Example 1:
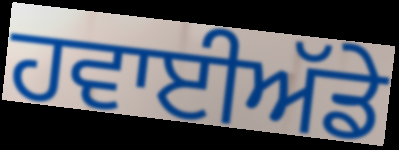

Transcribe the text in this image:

ਹਵਾਈਅੱਡੇ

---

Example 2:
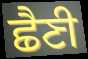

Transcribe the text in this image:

ਛੈਣੀ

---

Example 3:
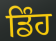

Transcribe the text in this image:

ਡਿੰਹ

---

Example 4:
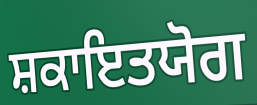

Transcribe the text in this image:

ਸ਼ਕਾਇਤਯੋਗ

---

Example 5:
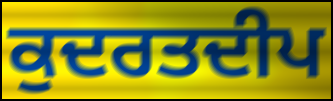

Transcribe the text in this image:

ਕੁਦਰਤਦੀਪ